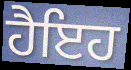
ਹੈਇਹ